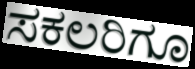
ಸಕಲರಿಗೂ